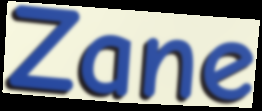
Zane